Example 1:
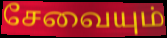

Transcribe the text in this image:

சேவையும்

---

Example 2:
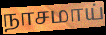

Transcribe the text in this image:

நாசமாய்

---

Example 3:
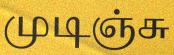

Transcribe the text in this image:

முடிஞ்சு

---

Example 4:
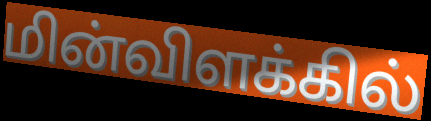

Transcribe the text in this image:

மின்விளக்கில்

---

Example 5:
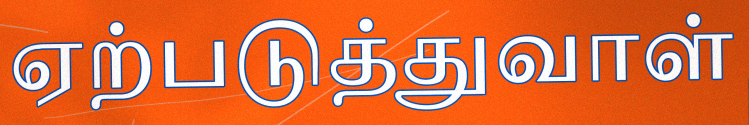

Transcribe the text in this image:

ஏற்படுத்துவாள்